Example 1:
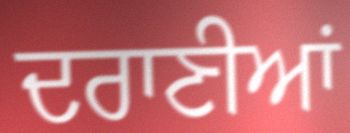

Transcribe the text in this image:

ਦਰਾਣੀਆਂ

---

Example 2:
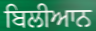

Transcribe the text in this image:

ਬਿਲੀਆਨ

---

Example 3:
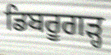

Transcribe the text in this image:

ਡਿਬਰੂਗੜ੍ਹ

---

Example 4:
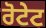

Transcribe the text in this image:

ਰੋਟੇਟ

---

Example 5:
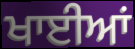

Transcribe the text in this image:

ਖਾਈਆਂ